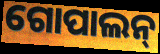
ଗୋପାଲନ୍